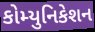
કોમ્યુનિકેશન